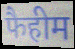
फैहीम